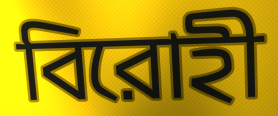
বিরোহী